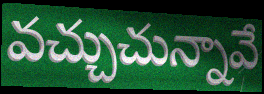
వచ్చుచున్నావే